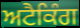
ਅਟੈਕਿੰਗ